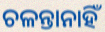
ଚଳନ୍ତାନାହିଁ